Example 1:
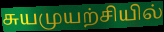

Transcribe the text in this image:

சுயமுயற்சியில்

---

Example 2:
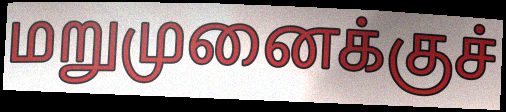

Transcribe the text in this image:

மறுமுனைக்குச்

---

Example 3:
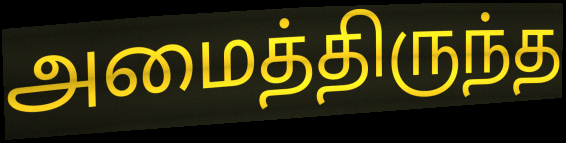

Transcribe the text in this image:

அமைத்திருந்த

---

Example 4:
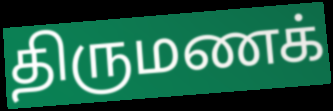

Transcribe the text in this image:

திருமணக்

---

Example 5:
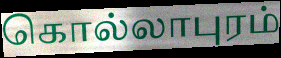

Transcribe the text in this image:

கொல்லாபுரம்